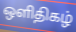
ஒளிதிகழ்